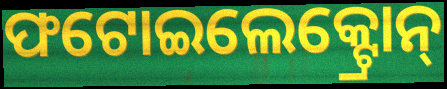
ଫଟୋଇଲେକ୍ଟ୍ରୋନ୍